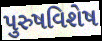
પુરુષવિશેષ